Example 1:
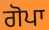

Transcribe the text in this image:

ਗੋਪਾ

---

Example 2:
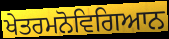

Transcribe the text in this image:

ਖੇਤਰਮਨੋਵਿਗਿਆਨ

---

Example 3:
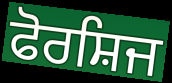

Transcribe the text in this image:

ਫੋਰਸ਼ਿਜ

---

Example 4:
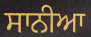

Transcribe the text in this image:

ਸਾਨੀਆ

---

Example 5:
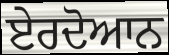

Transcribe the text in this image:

ਏਰਦੋਆਨ